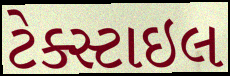
ટેક્સ્ટાઇલ